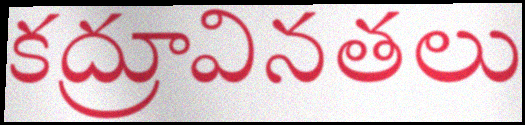
కద్రూవినతలు